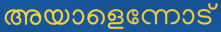
അയാളെന്നോട്